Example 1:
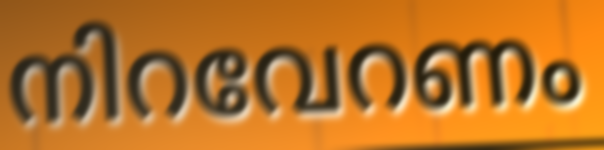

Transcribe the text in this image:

നിറവേറണം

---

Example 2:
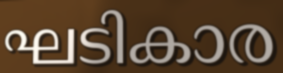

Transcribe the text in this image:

ഘടികാര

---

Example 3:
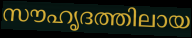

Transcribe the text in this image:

സൗഹൃദത്തിലായ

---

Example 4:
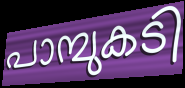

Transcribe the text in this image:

പാമ്പുകടി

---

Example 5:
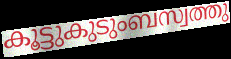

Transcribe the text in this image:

കൂട്ടുകുടുംബസ്വത്തു